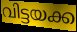
വിട്ടയക്ക